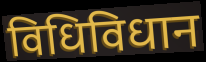
विधिविधान